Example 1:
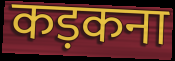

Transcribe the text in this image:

कड़कना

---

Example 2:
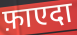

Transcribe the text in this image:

फ़ाएदा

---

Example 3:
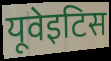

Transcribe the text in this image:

यूवेइटिस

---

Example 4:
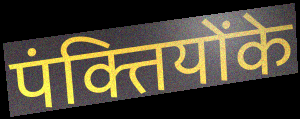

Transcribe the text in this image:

पंक्तियोंके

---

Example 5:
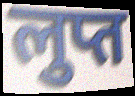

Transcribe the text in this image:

लुप्त